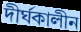
দীর্ঘকালীন